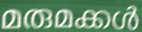
മരുമക്കൾ